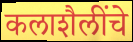
कलाशैलींचे